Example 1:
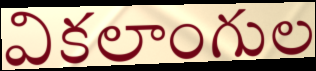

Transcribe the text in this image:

వికలాంగుల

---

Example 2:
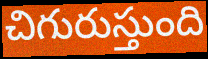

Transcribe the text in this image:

చిగురుస్తుంది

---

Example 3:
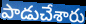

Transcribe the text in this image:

పాడుచేశారు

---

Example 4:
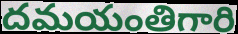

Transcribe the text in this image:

దమయంతిగారి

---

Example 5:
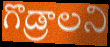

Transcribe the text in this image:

గొడ్రాలని